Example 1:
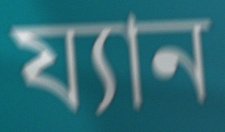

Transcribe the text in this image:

য্যান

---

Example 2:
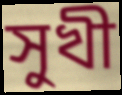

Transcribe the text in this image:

সুখী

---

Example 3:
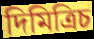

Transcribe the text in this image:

দিমিত্রিচ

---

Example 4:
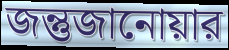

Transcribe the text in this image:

জন্তুজানোয়ার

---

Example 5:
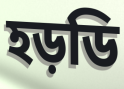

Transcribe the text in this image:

হড়ডি